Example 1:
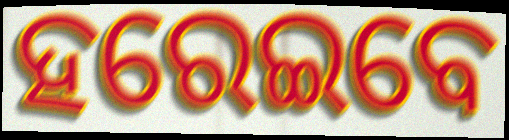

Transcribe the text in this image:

ହରେଇବେ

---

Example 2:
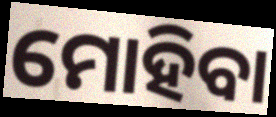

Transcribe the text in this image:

ମୋହିବା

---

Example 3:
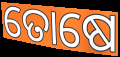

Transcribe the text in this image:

ତୋଷେ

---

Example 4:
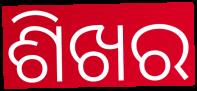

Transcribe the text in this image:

ଶିଖର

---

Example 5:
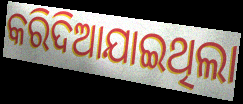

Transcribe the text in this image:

କରିଦିଆଯାଇଥିଲା